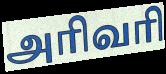
அரிவரி